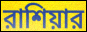
রাশিয়ার